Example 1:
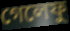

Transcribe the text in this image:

গেলেফু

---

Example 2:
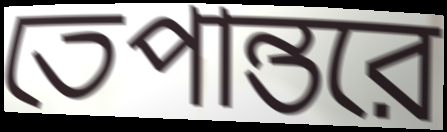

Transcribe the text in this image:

তেপান্তরে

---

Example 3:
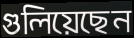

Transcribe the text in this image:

গুলিয়েছেন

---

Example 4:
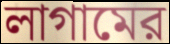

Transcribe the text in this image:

লাগামের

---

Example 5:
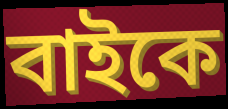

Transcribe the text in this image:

বাইকে